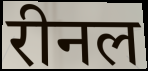
रीनल